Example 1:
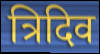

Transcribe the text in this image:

त्रिदिव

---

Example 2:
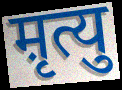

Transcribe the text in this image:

म़ृत्यु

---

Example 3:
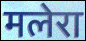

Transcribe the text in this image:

मलेरा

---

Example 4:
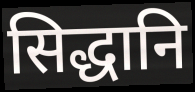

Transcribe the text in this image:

सिद्धानि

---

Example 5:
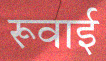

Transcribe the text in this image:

रूवाई